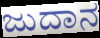
ಜುದಾನ